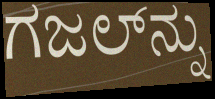
ಗಜಲ್‍ನ್ನು